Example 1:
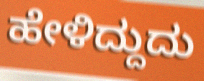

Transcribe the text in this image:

ಹೇಳಿದ್ದುದು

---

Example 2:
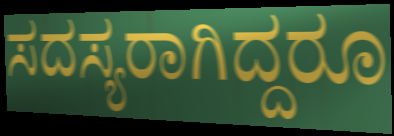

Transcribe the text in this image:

ಸದಸ್ಯರಾಗಿದ್ದರೂ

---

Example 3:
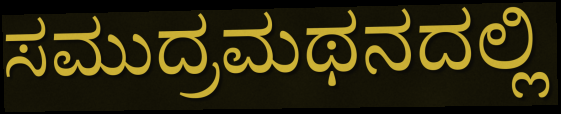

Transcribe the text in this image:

ಸಮುದ್ರಮಥನದಲ್ಲಿ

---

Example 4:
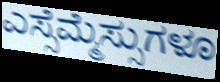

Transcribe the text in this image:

ಎಸ್ಸೆಮ್ಮೆಸ್ಸುಗಳೂ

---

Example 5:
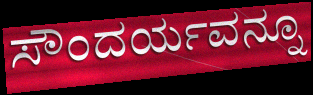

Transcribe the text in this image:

ಸೌಂದರ್ಯವನ್ನೂ